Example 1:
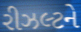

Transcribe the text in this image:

રીઝલ્ટને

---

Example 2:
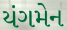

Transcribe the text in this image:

યંગમેન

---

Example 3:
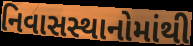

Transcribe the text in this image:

નિવાસસ્થાનોમાંથી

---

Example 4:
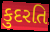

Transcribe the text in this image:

કુદરતિ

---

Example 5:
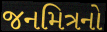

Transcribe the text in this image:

જનમિત્રનો